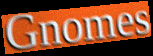
Gnomes